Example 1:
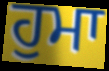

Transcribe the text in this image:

ਹੁਮਾ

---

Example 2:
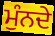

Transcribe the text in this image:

ਮੁੰਨਦੇ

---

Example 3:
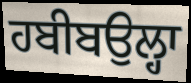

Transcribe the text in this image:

ਹਬੀਬਉਲ੍ਹਾ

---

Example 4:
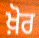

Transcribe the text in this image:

ਖ਼ੋਰ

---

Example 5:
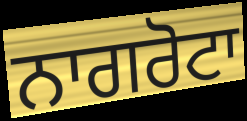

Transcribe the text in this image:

ਨਾਗਰੋਟਾ